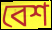
বেশ